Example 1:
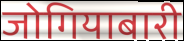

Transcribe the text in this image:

जोगियाबारी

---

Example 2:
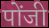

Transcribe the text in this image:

पोंजी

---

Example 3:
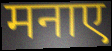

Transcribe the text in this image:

मनाए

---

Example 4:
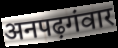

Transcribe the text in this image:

अनपढ़गंवार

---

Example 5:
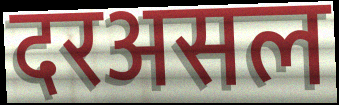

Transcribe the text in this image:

दरअसल